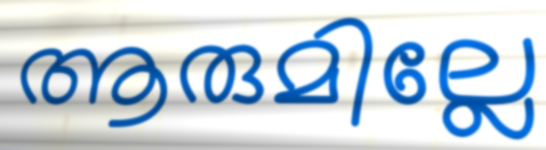
ആരുമില്ലേ